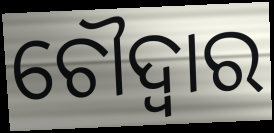
ଚୌଦ୍ବାର